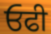
ਓਫੀ